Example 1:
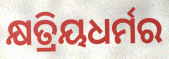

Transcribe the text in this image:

କ୍ଷତ୍ରିୟଧର୍ମର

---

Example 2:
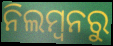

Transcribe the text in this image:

ନିଲମ୍ବନରୁ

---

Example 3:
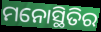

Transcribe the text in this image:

ମନୋସ୍ଥିତିର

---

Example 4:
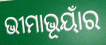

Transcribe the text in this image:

ଭୀମାଭୂୟାଁର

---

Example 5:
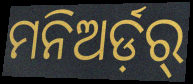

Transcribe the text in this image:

ମନିଅର୍ଡ଼ର୍